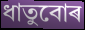
ধাতুবোৰ